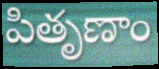
పితృణాం